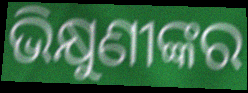
ଭିକ୍ଷୁଣୀଙ୍କର